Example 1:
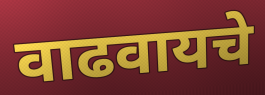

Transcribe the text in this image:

वाढवायचे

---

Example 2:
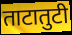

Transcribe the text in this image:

ताटातुटी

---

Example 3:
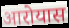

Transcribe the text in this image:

आरोयास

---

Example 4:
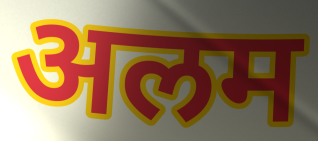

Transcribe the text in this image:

अलम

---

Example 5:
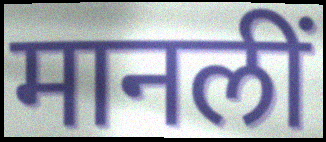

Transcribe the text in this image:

मानलीं